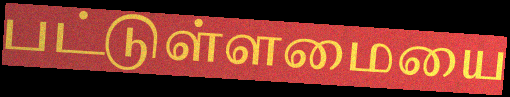
பட்டுள்ளமையை